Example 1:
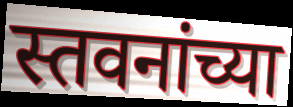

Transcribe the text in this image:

स्तवनांच्या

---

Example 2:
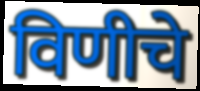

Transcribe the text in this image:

विणीचे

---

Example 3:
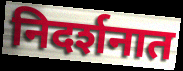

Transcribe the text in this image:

निदर्शनात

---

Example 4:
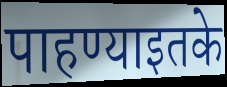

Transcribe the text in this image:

पाहण्याइतके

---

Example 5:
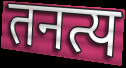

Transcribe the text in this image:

तनत्य